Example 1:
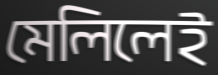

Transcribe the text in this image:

মেলিলেই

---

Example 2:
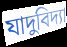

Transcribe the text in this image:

যাদুবিদ্যা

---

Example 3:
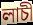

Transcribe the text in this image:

লাচী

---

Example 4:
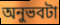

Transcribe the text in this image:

অনুভবটা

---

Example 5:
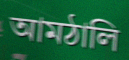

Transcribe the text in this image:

আমঠালি